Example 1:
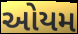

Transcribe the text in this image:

ઓયમ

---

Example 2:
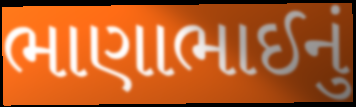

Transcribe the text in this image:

ભાણાભાઈનું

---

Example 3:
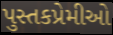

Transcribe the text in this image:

પુસ્તકપ્રેમીઓ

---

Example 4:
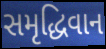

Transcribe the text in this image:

સમૃદ્ધિવાન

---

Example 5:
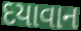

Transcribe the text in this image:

દયાવાન